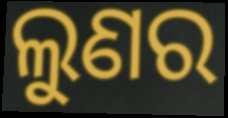
ଲୁଣର